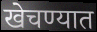
खेचण्यात